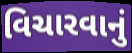
વિચારવાનું